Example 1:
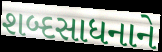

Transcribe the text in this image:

શબ્દસાધનાને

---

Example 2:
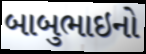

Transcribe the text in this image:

બાબુભાઇનો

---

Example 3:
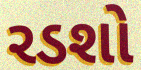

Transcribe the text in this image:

રડશો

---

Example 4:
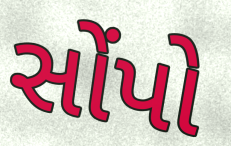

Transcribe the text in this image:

સોંપો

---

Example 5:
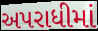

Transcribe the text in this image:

અપરાધીમાં